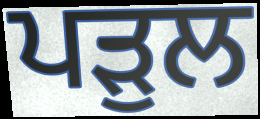
ਪੜੁਲ